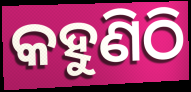
କହୁଣିଠି